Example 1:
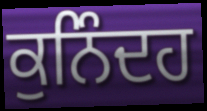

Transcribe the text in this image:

ਕੁਨਿੰਦਹ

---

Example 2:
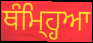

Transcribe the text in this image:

ਥੰਮ੍ਹ੍ਹਿਆ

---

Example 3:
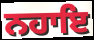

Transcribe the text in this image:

ਨਹਾਇ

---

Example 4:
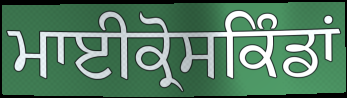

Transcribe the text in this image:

ਮਾਈਕ੍ਰੋਸਕਿੰਡਾਂ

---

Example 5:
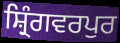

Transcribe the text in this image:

ਸ਼੍ਰਿੰਗਵਰਪੁਰ